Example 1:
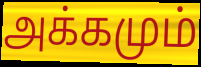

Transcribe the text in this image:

அக்கமும்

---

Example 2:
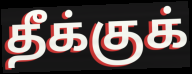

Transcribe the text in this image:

தீக்குக்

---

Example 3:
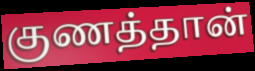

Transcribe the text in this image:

குணத்தான்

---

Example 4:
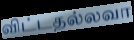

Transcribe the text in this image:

விட்டதல்லவா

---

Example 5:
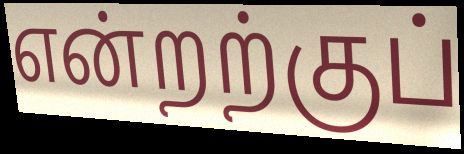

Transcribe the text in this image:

என்றற்குப்